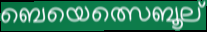
ബെയെത്സെബൂല്